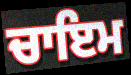
ਚਾਇਮ